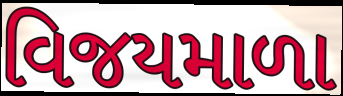
વિજયમાળા